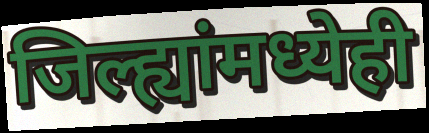
जिल्ह्यांमध्येही